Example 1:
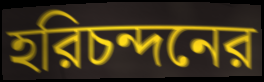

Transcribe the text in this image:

হরিচন্দনের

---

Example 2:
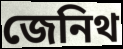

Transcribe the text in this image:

জেনিথ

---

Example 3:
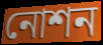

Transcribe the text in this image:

নোশন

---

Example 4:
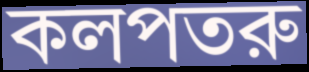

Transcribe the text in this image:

কলপতরু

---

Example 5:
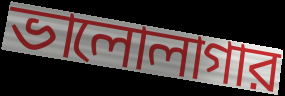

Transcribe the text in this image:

ভালোলাগার